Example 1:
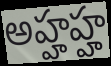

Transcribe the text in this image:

అహ్హహ్హ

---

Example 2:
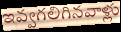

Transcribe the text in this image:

ఇవ్వగలిగినవాళ్లు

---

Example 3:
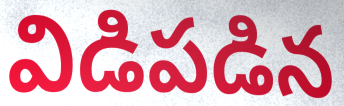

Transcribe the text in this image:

విడిపడిన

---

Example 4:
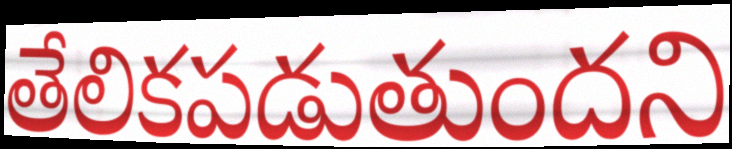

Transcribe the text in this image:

తేలికపడుతుందని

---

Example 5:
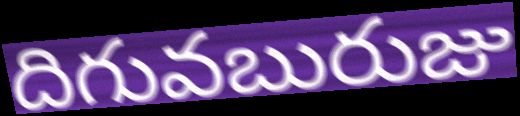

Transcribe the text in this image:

దిగువబురుజు